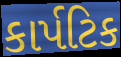
કાર્પટિક